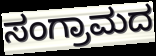
ಸಂಗ್ರಾಮದ